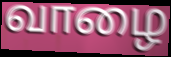
வாழை